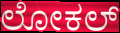
ಲೋಕಲ್